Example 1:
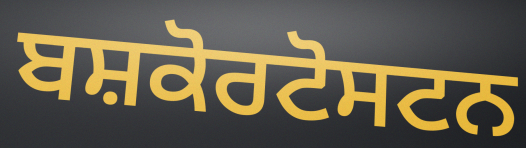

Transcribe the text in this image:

ਬਸ਼ਕੋਰਟੋਸਟਨ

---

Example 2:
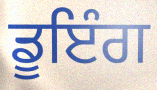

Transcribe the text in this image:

ਡੂਇੰਗ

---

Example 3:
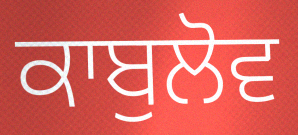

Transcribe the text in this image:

ਕਾਬੁਲੋਵ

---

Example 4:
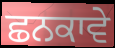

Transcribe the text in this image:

ਛਨਕਾਵੇ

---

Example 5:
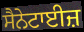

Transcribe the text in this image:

ਸੈਨੇਟਾਈਜ਼